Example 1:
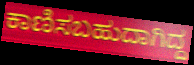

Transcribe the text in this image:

ಕಾಣಿಸಬಹುದಾಗಿದ್ದ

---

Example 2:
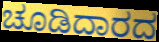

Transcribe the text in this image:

ಚೂಡಿದಾರದ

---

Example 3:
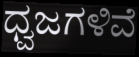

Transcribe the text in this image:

ಧ್ವಜಗಳಿವೆ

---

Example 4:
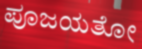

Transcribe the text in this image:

ಪೂಜಯತೋ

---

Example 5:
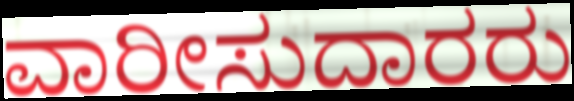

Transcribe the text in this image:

ವಾರೀಸುದಾರರು